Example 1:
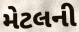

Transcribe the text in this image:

મેટલની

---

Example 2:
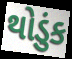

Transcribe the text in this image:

થોડુંક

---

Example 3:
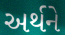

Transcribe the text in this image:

અર્થને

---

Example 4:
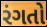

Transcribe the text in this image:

રંગતો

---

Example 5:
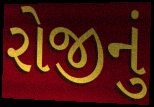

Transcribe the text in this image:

રોજીનું